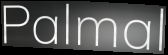
Palmal